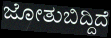
ಜೋತುಬಿದ್ದಿದೆ